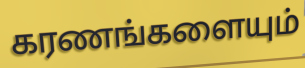
கரணங்களையும்